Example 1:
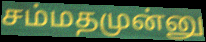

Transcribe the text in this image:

சம்மதமுன்னு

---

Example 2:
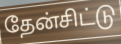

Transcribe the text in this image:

தேன்சிட்டு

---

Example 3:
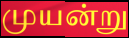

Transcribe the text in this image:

முயன்று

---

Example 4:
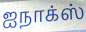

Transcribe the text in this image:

ஐநாக்ஸ்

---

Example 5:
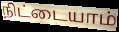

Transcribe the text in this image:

நிட்டையாம்